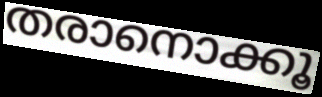
തരാനൊക്കൂ